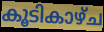
കൂടികാഴ്ച